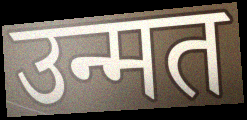
उन्मत